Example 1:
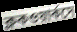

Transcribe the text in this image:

ক্লকওয়ার্কসে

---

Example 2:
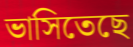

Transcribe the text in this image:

ভাসিতেছে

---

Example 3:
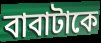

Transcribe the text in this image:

বাবাটাকে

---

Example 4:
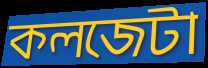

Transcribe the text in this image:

কলজেটা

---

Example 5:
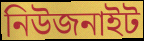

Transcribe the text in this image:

নিউজনাইট